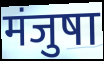
मंजुषा